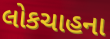
લોકચાહના